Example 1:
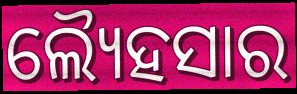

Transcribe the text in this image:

ଲ୍ୟୈହସାର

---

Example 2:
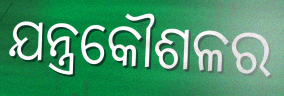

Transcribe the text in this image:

ଯନ୍ତ୍ରକୌଶଳର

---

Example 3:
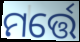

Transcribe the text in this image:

ମର୍ତ୍ତେ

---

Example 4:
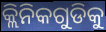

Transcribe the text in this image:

କ୍ଲିନିକଗୁଡିକୁ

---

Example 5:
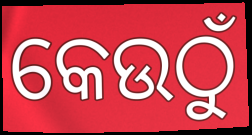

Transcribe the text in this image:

କେଉଠୁଁ